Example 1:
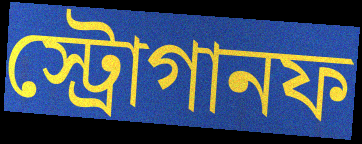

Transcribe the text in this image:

স্ট্রোগানফ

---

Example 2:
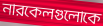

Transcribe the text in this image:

নারকেলগুলোকে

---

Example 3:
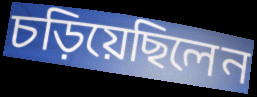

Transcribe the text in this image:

চড়িয়েছিলেন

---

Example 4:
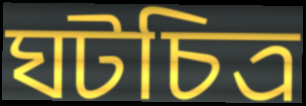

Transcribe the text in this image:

ঘটচিত্র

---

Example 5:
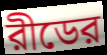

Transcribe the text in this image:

রীডের